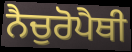
ਨੈਚੁਰੋਪੈਥੀ